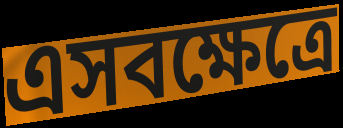
এসবক্ষেত্রে